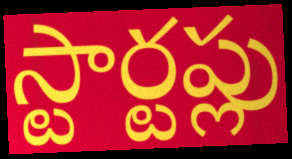
స్టార్టప్లు